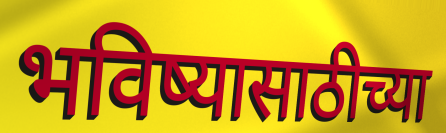
भविष्यासाठीच्या